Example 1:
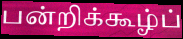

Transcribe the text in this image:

பன்றிக்கூழ்ப்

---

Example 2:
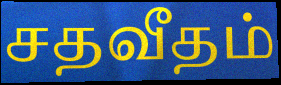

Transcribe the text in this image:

சதவீதம்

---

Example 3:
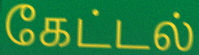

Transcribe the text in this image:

கேட்டல்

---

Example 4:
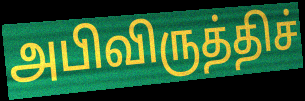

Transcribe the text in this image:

அபிவிருத்திச்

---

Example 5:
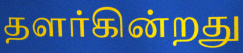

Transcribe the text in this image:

தளர்கின்றது